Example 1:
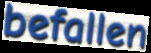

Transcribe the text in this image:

befallen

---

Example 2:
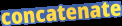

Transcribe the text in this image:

concatenate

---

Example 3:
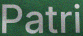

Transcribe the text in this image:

Patri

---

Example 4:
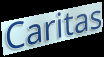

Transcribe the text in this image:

Caritas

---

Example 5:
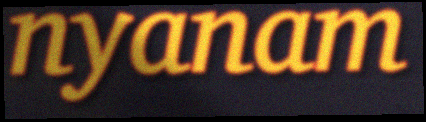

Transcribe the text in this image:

nyanam